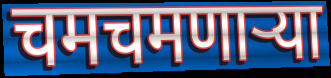
चमचमणाऱ्या